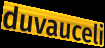
duvauceli